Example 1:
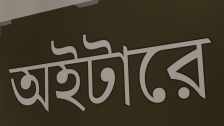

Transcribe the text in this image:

অইটারে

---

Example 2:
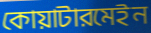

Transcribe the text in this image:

কোয়াটারমেইন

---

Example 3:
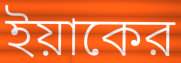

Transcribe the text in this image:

ইয়াকের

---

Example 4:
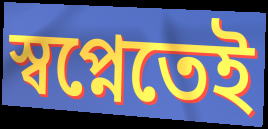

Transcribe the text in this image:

স্বপ্নেতেই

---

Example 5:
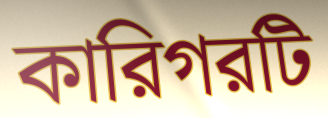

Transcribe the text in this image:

কারিগরটি